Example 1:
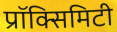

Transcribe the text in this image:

प्रॉक्सिमिटी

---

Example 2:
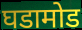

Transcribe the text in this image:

घडामोड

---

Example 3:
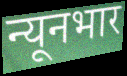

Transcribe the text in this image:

न्यूनभार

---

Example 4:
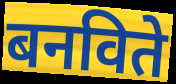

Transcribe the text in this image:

बनविते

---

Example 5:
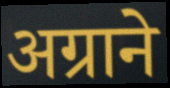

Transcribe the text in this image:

अग्राने